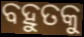
ବହୁତକୁ